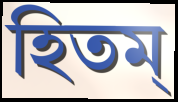
হিতম্